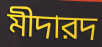
মীদারদ